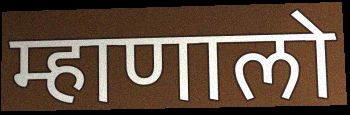
म्हाणालो